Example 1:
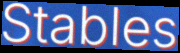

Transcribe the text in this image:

Stables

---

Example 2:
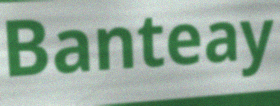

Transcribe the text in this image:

Banteay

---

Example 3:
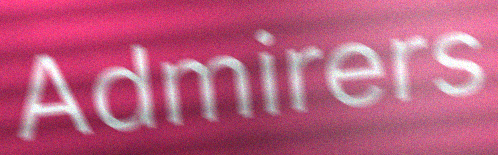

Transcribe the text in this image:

Admirers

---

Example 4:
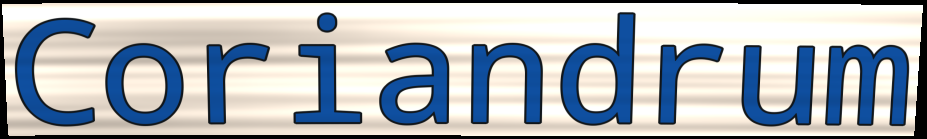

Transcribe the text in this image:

Coriandrum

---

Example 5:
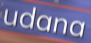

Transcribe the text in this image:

udana